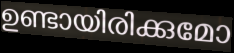
ഉണ്ടായിരിക്കുമോ